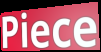
Piece